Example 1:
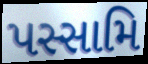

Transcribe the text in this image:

પસ્સામિ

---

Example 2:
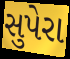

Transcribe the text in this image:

સુપેરા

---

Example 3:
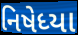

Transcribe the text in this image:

નિષેધ્યા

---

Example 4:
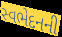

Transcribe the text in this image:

સ્વભેદનની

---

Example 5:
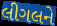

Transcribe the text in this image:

લીગલને